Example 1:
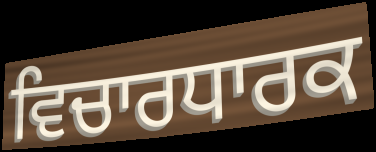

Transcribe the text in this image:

ਵਿਚਾਰਧਾਰਕ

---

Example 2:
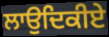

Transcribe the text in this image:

ਲਾਉਦਿਕੀਏ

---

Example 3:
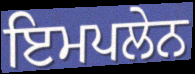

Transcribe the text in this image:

ਇਮਪਲੇਨ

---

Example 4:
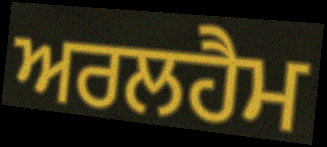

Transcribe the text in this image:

ਅਰਲਹੈਮ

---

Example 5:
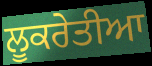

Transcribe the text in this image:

ਲੂਕਰੇਤੀਆ